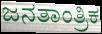
ಜನತಾಂತ್ರಿಕ